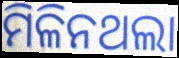
ମିଳିନଥଲା